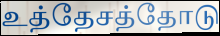
உத்தேசத்தோடு